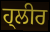
ਹ੍ਲੀਰ